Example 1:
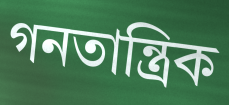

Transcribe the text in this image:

গনতান্ত্ৰিক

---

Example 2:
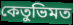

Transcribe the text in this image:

কেতুভিমত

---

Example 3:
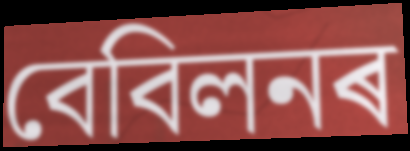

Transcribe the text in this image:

বেবিলনৰ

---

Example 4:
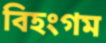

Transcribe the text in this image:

বিহংগম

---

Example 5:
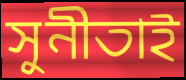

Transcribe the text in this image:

সুনীতাই